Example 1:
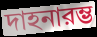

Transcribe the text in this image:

দাহনারম্ভ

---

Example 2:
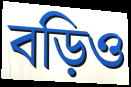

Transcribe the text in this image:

বড়িও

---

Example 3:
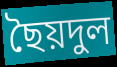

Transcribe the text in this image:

ছৈয়দুল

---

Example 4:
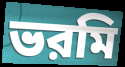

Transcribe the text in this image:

ভরমি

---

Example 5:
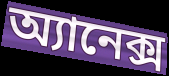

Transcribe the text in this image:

অ্যানেক্স